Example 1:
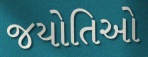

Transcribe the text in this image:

જયોતિઓ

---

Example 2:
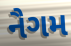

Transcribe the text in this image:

નૈગમ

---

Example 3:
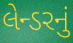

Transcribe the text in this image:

લેન્ડરનું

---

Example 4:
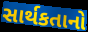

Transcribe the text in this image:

સાર્થકતાનો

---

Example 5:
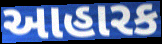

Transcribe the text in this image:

આહારક